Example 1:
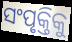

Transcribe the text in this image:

ସଂପୃକ୍ତିକୁ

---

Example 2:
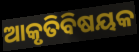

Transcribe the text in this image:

ଆକୃତିବିଷୟକ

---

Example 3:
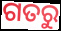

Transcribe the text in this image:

ଗତରୁ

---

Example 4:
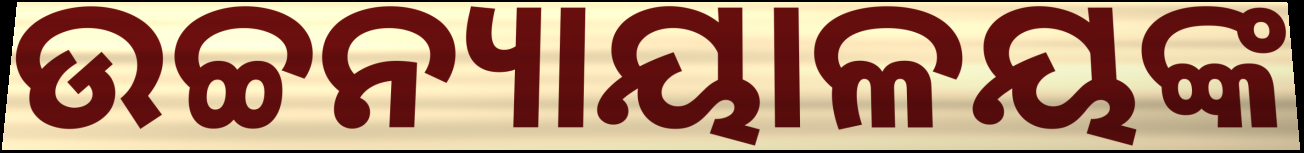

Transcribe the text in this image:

ଉଚ୍ଚନ୍ୟାୟାଳୟଙ୍କ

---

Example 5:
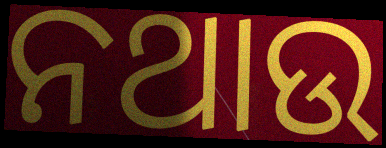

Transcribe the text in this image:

ନଥାଉ